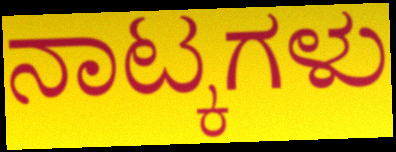
ನಾಟ್ಕಗಳು